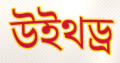
উইথড্র